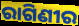
ରାଗିଣୀର